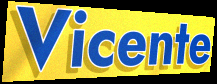
Vicente